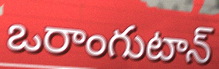
ఒరాంగుటాన్